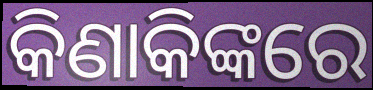
କିଣାକିଙ୍କରେ